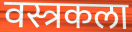
वस्त्रकला